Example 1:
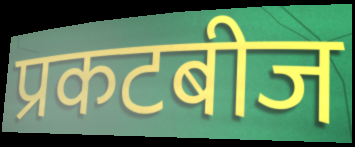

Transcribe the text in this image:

प्रकटबीज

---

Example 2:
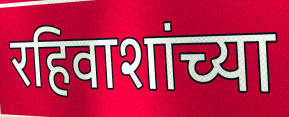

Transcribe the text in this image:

रहिवाशांच्या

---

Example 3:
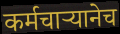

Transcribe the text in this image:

कर्मचाऱ्यानेच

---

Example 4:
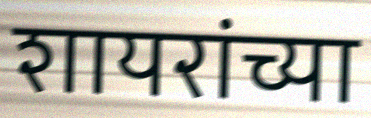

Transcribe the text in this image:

शायरांच्या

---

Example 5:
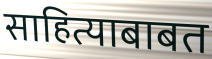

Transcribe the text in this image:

साहित्याबाबत